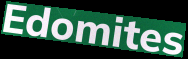
Edomites